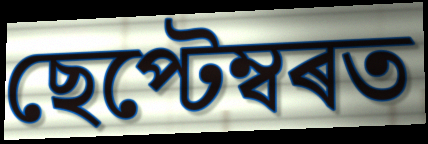
ছেপ্টেম্বৰত